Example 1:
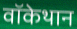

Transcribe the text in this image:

वॉकेथान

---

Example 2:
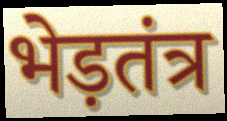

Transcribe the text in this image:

भेड़तंत्र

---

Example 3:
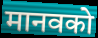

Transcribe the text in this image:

मानवको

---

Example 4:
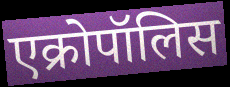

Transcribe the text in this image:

एक्रोपॉलिस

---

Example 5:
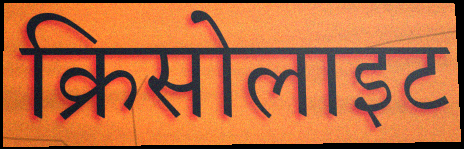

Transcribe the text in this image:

क्रिसोलाइट